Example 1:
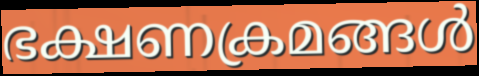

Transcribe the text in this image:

ഭക്ഷണക്രമങ്ങൾ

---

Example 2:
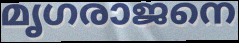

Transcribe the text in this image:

മൃഗരാജനെ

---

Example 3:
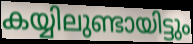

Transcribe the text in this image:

കയ്യിലുണ്ടായിട്ടും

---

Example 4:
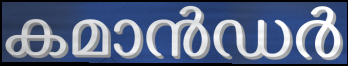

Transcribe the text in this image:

കമാൻഡർ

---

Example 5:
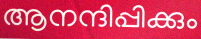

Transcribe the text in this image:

ആനന്ദിപ്പിക്കും